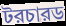
টরচারড